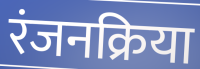
रंजनक्रिया